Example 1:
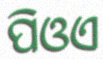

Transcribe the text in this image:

ପିଓଏ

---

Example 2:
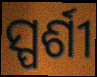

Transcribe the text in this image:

ସ୍ପର୍ଶୀ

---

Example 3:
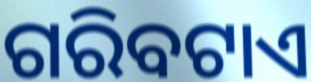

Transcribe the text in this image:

ଗରିବଟାଏ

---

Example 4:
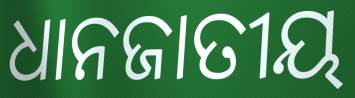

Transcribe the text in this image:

ଧାନଜାତୀୟ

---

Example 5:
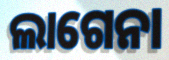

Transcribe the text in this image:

ଲାଗେନା